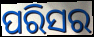
ପରିସର